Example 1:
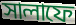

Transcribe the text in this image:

সালাফে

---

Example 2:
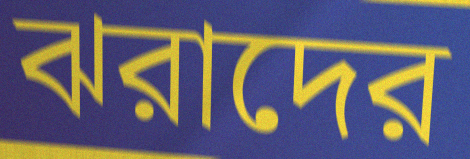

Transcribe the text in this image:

ঝরাদের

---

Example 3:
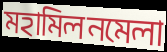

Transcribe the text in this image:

মহামিলনমেলা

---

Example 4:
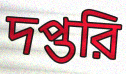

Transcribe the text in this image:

দপ্তরি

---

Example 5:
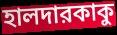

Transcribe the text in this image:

হালদারকাকু